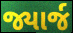
જ્યાર્જ